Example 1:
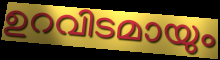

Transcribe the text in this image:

ഉറവിടമായും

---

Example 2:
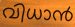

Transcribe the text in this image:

വിധാൻ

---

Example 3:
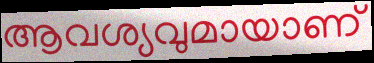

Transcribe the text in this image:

ആവശ്യവുമായാണ്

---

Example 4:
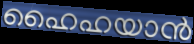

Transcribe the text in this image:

ഹൈഹയാൻ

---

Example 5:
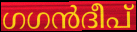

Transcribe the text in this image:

ഗഗൻദീപ്